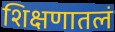
शिक्षणातलं